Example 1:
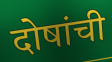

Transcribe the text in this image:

दोषांची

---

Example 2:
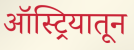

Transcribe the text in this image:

ऑस्ट्रियातून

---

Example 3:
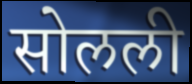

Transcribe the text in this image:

सोलली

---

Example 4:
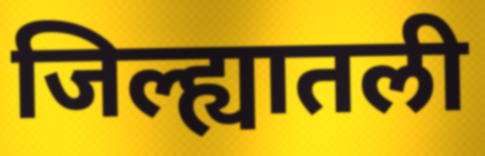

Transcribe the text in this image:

जिल्ह्यातली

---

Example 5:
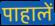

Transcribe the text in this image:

पाहालें